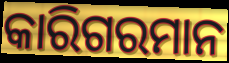
କାରିଗରମାନ